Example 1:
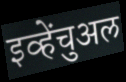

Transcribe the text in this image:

इव्हेंचुअल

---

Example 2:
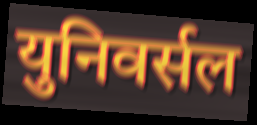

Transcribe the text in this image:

युनिवर्सल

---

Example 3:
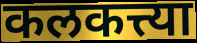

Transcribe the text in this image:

कलकत्त्या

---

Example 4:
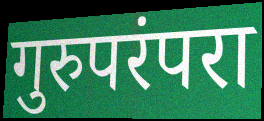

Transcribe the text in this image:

गुरुपरंपरा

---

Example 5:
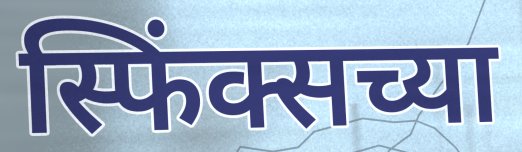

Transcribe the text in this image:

स्फिंक्सच्या